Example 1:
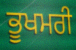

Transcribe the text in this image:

ਭੂਖਮਰੀ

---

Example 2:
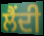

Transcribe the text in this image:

ਲੈਂਦੀ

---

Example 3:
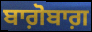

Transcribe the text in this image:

ਬਾਗ਼ੋਬਾਗ਼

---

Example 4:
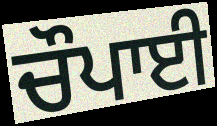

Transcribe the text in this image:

ਚੌਪਾਈ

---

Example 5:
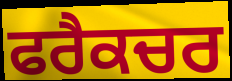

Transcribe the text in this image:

ਫਰੈਕਚਰ